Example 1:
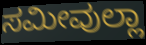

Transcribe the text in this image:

ಸಮೀವುಲ್ಲಾ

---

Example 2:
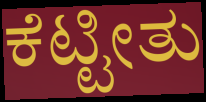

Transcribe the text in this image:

ಕೆಟ್ಟೀತು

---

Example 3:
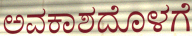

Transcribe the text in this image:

ಅವಕಾಶದೊಳಗೆ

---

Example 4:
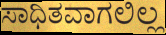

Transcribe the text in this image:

ಸಾಧಿತವಾಗಲಿಲ್ಲ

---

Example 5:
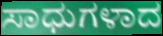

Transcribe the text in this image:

ಸಾಧುಗಳಾದ